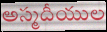
అస్మదీయుల